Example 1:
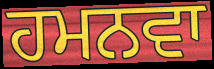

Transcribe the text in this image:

ਹਮਨਵਾ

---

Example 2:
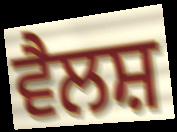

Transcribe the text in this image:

ਵੈਲਸ਼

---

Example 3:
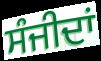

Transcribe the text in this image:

ਸੰਜੀਦਾਂ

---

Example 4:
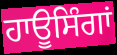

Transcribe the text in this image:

ਹਾਊਸਿੰਗਾਂ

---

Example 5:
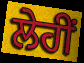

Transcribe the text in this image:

ਲੇਹੀਂ